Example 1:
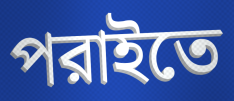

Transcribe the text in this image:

পরাইতে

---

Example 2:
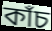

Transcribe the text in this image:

কাঁচ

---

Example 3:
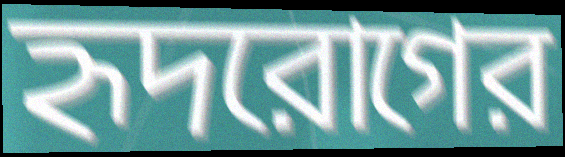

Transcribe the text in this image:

হৃদরোগের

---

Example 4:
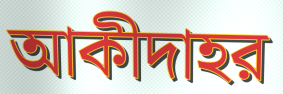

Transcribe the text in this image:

আকীদাহর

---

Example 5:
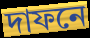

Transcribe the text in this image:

দাফনে